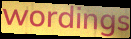
wordings